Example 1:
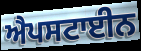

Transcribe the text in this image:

ਐਪਸਟਾਈਨ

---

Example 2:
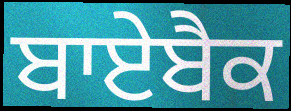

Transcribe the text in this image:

ਬਾਏਬੈਕ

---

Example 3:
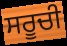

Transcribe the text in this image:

ਸਰੂਚੀ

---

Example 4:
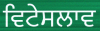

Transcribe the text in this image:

ਵਿਟੇਸਲਾਵ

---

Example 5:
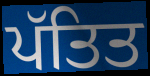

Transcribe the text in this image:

ਪੱਤਿਤ